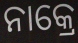
ନାକ୍ରେ